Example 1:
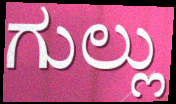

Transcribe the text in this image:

ಗುಲ್ಲು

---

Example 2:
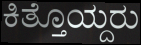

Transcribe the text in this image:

ಕಿತ್ತೊಯ್ದರು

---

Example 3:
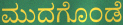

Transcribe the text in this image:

ಮುದಗೊಂಡೆ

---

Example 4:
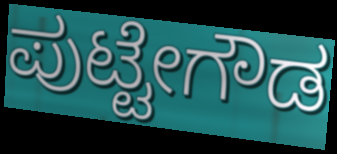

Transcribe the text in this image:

ಪುಟ್ಟೇಗೌಡ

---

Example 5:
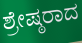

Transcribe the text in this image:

ಶ್ರೇಷ್ಠರಾದ